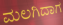
ಮಲಗಿದಾಗ